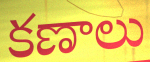
కణాలు